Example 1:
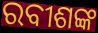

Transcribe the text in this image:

ରବୀଶଙ୍କ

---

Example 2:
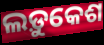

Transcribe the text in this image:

ଲଡ଼ୁକେଶ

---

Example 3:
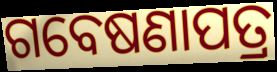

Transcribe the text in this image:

ଗବେଷଣାପତ୍ର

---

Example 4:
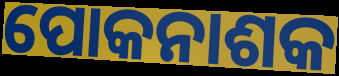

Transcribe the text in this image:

ପୋକନାଶକ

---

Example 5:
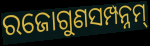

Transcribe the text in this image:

ରଜୋଗୁଣସମ୍ପନ୍ନମ୍